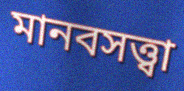
মানবসত্ত্বা